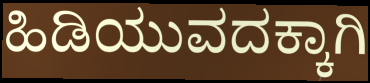
ಹಿಡಿಯುವದಕ್ಕಾಗಿ